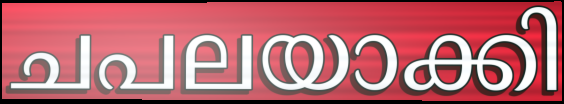
ചപലയാക്കി